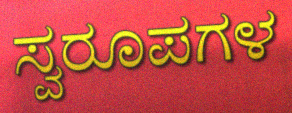
ಸ್ವರೂಪಗಳ